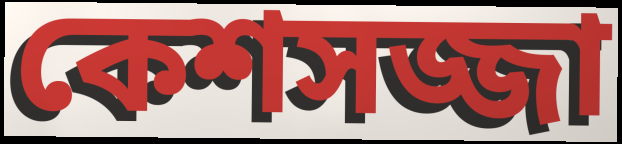
কেশসজ্জা